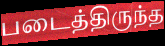
படைத்திருந்த